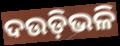
ଦଉଡ଼ିଭଳି